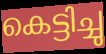
കെട്ടിച്ചു